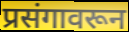
प्रसंगावरून